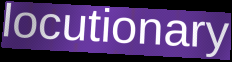
locutionary